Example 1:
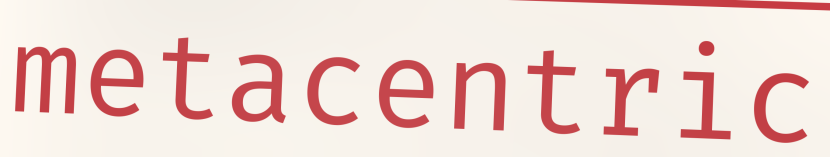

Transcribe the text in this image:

metacentric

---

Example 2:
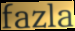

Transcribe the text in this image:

fazla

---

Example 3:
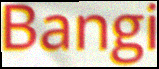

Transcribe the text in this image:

Bangi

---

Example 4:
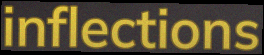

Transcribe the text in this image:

inflections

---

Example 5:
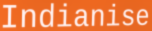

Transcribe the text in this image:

Indianise